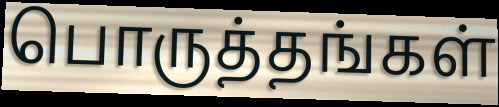
பொருத்தங்கள்